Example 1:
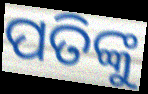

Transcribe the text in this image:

ପତିଙ୍କୁ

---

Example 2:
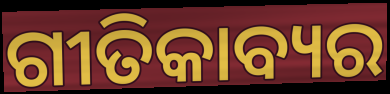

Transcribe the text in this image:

ଗୀତିକାବ୍ୟର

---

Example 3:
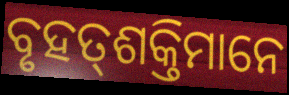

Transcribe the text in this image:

ବୃହତ୍‌ଶକ୍ତିମାନେ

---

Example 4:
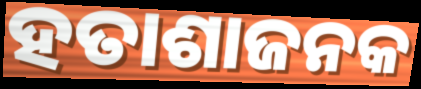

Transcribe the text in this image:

ହତାଶାଜନକ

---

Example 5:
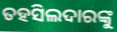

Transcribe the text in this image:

ତହସିଲଦାରଙ୍କୁ